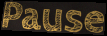
Pause